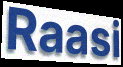
Raasi